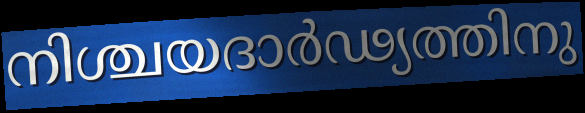
നിശ്ചയദാർഢ്യത്തിനു